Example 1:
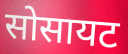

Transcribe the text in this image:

सोसायट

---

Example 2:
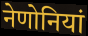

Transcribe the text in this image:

नेणोनियां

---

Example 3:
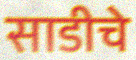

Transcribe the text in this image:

साडीचे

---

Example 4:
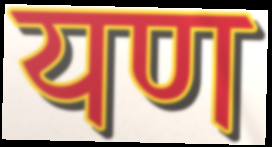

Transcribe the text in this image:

यण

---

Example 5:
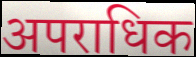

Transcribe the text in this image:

अपराधिक